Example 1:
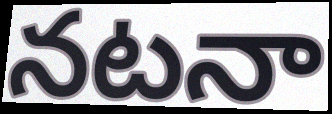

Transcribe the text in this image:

నటనా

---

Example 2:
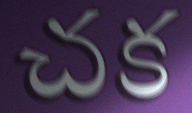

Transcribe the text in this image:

చక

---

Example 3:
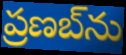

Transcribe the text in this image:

ప్రణబ్‌ను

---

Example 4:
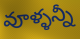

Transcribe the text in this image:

వూళ్ళన్నీ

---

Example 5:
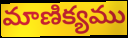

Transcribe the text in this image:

మాణిక్యము